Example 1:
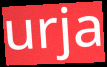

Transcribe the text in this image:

urja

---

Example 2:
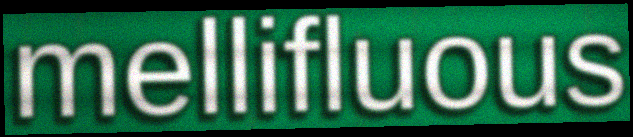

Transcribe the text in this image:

mellifluous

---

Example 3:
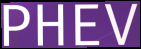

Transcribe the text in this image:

PHEV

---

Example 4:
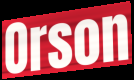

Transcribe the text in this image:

Orson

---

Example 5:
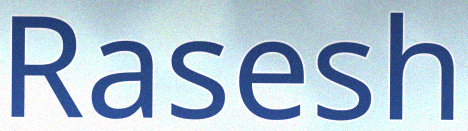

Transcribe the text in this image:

Rasesh